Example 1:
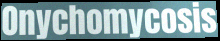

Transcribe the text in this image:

Onychomycosis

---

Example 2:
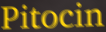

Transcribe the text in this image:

Pitocin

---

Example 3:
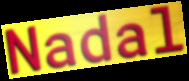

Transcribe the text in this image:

Nadal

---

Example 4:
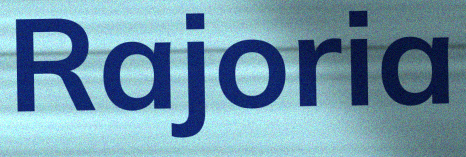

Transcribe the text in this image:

Rajoria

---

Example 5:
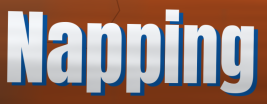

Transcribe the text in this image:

Napping